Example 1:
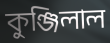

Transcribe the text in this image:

কুঞ্জিলাল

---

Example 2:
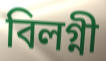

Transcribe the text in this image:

বিলগ্নী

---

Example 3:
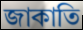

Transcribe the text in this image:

জাকাতি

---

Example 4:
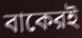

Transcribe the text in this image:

বাকেরই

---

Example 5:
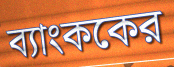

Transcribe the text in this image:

ব্যাংককের